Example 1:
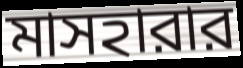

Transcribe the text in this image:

মাসহারার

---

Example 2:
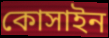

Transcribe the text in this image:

কোসাইন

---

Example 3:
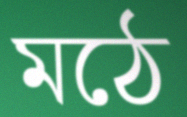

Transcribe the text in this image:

মঠে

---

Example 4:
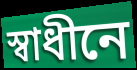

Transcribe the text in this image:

স্বাধীনে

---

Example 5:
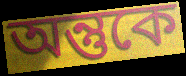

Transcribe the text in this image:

অন্তুকে